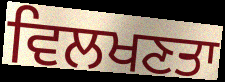
ਵਿਲਖਣਤਾ